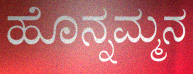
ಹೊನ್ನಮ್ಮನ